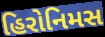
હિરોનિમસ